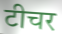
टीचर